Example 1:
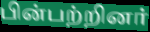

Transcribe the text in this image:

பின்பற்றினர்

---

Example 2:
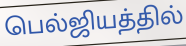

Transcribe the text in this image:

பெல்ஜியத்தில்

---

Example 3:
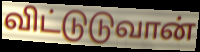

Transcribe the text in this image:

விட்டுடுவான்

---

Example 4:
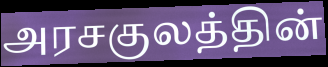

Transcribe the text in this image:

அரசகுலத்தின்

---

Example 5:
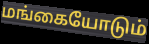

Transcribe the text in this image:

மங்கையோடும்